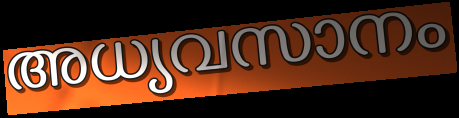
അധ്യവസാനം